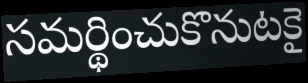
సమర్థించుకొనుటకై